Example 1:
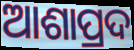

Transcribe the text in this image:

ଆଶାପ୍ରଦ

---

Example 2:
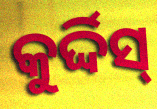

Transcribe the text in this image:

କୁର୍ଦ୍ଦିସ୍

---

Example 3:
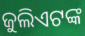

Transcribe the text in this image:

ଜୁଲିଏଟଙ୍କ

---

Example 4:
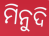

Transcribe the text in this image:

ମିନୁଦି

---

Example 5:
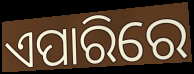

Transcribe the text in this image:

ଏପାରିରେ